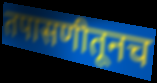
तपासणीतूनच